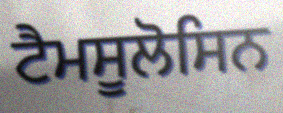
ਟੈਮਸੂਲੋਸਿਨ